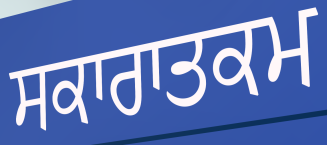
ਸਕਾਰਾਤਕਮ